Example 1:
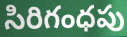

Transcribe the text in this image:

సిరిగంధపు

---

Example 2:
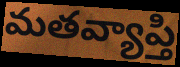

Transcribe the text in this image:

మతవ్యాప్తి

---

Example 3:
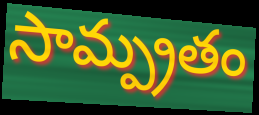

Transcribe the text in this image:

సామ్ప్రతం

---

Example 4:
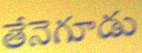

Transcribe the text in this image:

తేనెగూడు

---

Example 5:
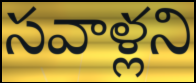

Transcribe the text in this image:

సవాళ్లని